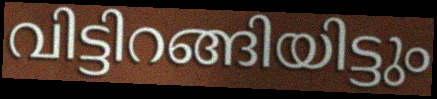
വിട്ടിറങ്ങിയിട്ടും